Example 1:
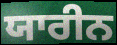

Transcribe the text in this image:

ਯਾਰੀਨ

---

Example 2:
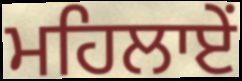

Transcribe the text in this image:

ਮਹਿਲਾਏਂ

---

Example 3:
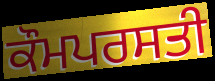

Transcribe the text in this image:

ਕੌਮਪਰਸਤੀ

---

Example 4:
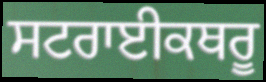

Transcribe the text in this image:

ਸਟਰਾਈਕਥਰੂ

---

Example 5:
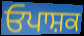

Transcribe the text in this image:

ਓਪਾਸ਼ਕ